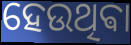
ହେଉଥିଵା